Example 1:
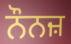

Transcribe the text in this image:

ਨੌਨਜ਼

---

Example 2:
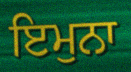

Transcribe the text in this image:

ਇਮੁਨਾ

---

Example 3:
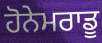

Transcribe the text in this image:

ਹੋਨੇਮਰਾਡੂ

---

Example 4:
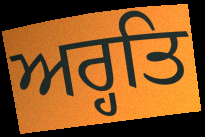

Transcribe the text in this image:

ਅਰ੍ਹਤਿ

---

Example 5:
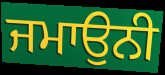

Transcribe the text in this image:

ਜਮਾਉਨੀ